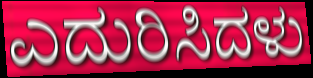
ಎದುರಿಸಿದಳು